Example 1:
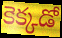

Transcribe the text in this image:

కెక్కడో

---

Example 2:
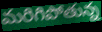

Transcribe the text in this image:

మరిగిపోతున్న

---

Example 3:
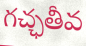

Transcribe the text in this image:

గచ్ఛతీవ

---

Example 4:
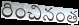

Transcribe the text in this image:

రించినంత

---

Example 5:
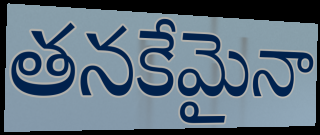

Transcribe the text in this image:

తనకేమైనా